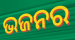
ଭଜନର